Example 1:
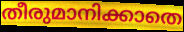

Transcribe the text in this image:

തീരുമാനിക്കാതെ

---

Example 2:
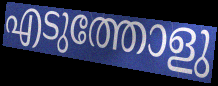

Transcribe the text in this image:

എടുത്തോളു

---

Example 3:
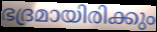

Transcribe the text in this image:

ഭദ്രമായിരിക്കും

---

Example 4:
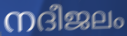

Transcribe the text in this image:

നദീജലം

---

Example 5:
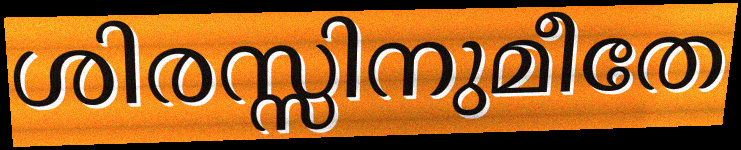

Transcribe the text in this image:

ശിരസ്സിനുമീതേ